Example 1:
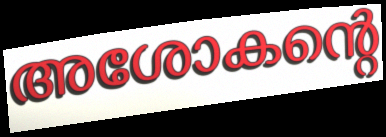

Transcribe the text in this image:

അശോകന്റെ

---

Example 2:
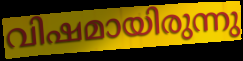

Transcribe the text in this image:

വിഷമായിരുന്നു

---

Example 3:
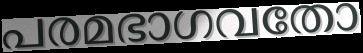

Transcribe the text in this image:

പരമഭാഗവതോ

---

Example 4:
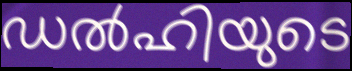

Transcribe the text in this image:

ഡൽഹിയുടെ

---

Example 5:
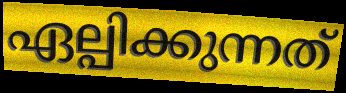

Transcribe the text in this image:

ഏല്പിക്കുന്നത്